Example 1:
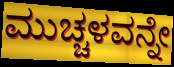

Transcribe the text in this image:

ಮುಚ್ಚಳವನ್ನೇ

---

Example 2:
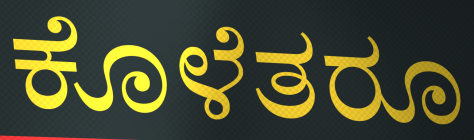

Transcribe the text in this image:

ಕೊಳೆತರೂ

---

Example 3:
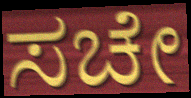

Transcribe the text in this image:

ಸಚೇ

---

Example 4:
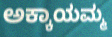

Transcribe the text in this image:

ಅಕ್ಕಾಯಮ್ಮ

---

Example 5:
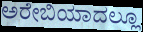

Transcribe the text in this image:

ಅರೇಬಿಯಾದಲ್ಲೂ